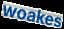
woakes